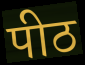
पीठ